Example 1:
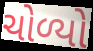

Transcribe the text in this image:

ચોળ્યો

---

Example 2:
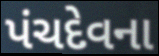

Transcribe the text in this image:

પંચદેવના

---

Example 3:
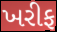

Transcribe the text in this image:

ખરીફ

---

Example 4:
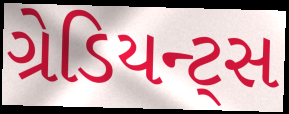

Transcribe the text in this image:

ગ્રેડિયન્ટ્સ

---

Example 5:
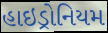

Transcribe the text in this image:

હાઇડ્રોનિયમ